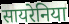
सायरेनिया